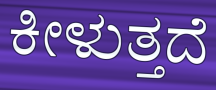
ಕೀಳುತ್ತದೆ